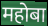
महोबा